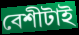
বেশীটাই